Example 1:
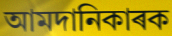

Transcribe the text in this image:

আমদানিকাৰক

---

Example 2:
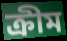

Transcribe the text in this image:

ক্ৰীম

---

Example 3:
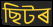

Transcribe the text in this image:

ছিটৰ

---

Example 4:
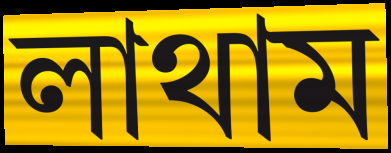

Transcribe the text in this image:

লাথাম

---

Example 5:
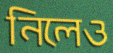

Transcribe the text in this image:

নিলেও